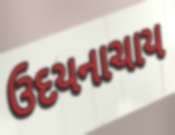
ઉદયનાચાય